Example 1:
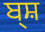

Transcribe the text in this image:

ਬ੍ਸ਼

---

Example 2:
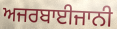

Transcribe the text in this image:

ਅਜਰਬਾਈਜਾਨੀ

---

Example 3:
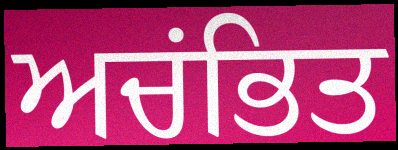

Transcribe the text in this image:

ਅਚਂਭਿਤ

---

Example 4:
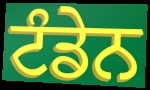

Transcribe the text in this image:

ਟੰਡੇਨ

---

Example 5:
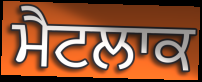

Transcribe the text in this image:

ਮੈਟਲਾਕ